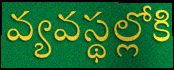
వ్యవస్థల్లోకి